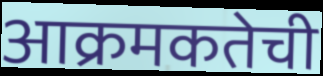
आक्रमकतेची